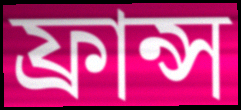
ফ্রান্স